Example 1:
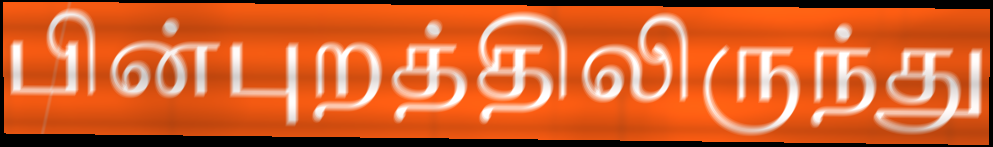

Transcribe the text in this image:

பின்புறத்திலிருந்து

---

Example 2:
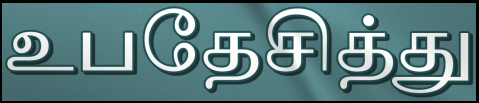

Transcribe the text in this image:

உபதேசித்து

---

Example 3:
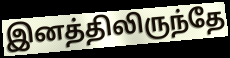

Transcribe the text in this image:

இனத்திலிருந்தே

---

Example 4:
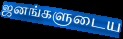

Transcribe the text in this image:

ஜனங்களுடைய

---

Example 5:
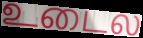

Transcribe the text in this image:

உடைல